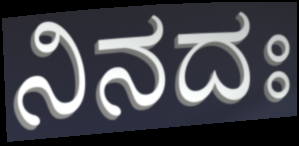
ನಿನದಃ